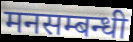
मनसम्बन्धी